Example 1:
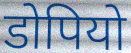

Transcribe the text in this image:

डोपियो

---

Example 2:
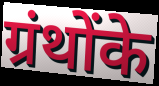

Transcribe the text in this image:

ग्रंथोंके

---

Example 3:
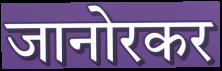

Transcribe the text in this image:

जानोरकर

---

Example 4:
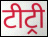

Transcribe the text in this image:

टीट्री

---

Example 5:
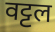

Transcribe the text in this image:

वट्टल